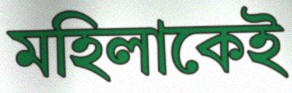
মহিলাকেই